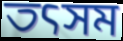
তৎসম